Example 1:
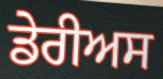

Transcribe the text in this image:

ਡੇਰੀਅਸ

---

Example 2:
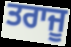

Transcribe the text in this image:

ਤਰਾਜੂ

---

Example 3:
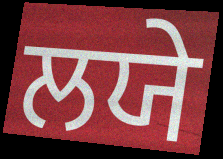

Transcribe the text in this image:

ਲਯੇ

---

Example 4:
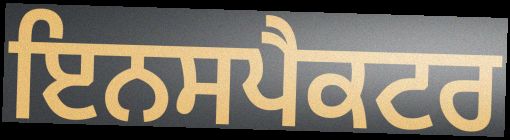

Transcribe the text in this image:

ਇਨਸਪੈਕਟਰ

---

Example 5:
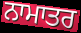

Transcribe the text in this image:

ਨਾਮਾਤਰ